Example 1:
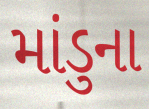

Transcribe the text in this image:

માંડુના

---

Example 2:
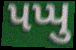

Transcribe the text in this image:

પપ્પુ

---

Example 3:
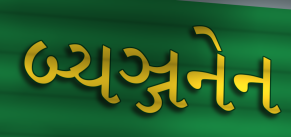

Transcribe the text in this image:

બ્યઞ્જનેન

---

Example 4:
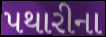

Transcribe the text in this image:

પથારીના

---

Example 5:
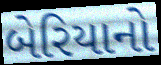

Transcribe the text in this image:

બેરિયાનો